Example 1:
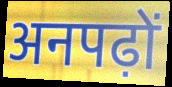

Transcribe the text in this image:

अनपढ़ों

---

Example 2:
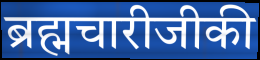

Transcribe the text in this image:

ब्रह्मचारीजीकी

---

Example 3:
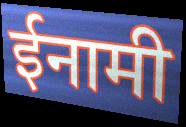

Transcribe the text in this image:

ईनामी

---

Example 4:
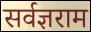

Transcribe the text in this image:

सर्वज्ञराम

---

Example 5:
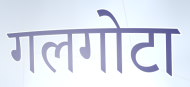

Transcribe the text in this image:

गलगोटा